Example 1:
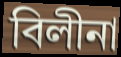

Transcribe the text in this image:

বিলীনা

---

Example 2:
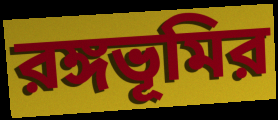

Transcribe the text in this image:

রঙ্গভূমির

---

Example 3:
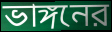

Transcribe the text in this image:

ভাঙ্গনের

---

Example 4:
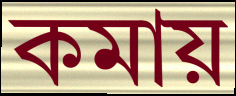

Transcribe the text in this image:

কমায়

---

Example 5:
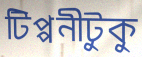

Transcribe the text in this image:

টিপ্পনীটুকু